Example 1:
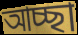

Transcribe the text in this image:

আচ্ছা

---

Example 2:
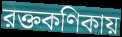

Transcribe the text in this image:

রক্তকণিকায়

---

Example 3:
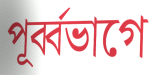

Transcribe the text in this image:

পূর্ব্বভাগে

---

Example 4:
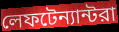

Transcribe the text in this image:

লেফটেন্যান্টরা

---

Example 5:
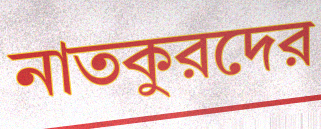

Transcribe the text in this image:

নাতকুরদের